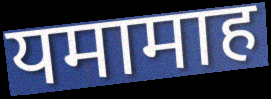
यमामाह